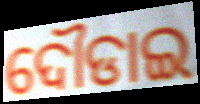
ଦୌଡାଇ